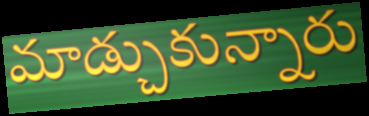
మాడ్చుకున్నారు